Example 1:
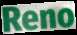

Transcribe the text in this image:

Reno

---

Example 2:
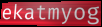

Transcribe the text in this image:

ekatmyog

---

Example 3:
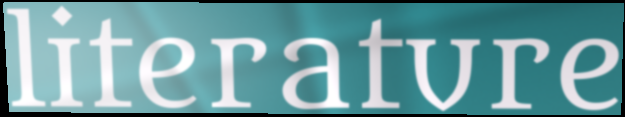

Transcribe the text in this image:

literature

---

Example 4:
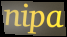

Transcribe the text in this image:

nipa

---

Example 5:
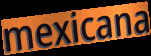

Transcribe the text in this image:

mexicana